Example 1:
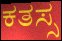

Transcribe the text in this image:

ಕತಸ್ಸ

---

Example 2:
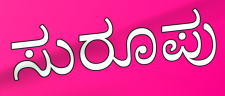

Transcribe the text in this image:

ಸುರೂಪು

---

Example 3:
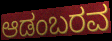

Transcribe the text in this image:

ಆಡಂಬರವ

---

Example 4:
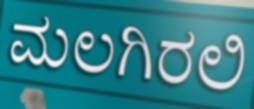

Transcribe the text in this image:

ಮಲಗಿರಲಿ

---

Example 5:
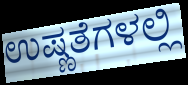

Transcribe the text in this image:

ಉಷ್ಣತೆಗಳಲ್ಲಿ